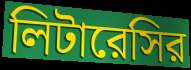
লিটারেসির